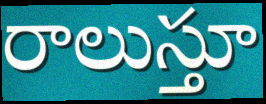
రాలుస్తూ